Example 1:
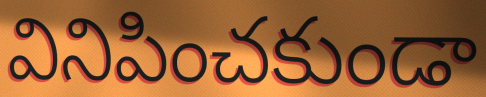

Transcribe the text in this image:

వినిపించకుండా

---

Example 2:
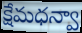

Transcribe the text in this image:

క్షేమధన్వా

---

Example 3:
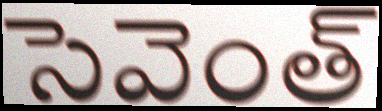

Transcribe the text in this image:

సెవెంత్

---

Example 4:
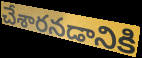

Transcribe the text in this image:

చేశారనడానికి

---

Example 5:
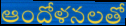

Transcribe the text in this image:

ఆందోళనలతో